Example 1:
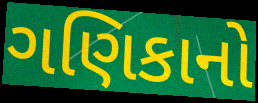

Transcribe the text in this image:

ગણિકાનો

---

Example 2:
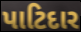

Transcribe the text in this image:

પાટિદાર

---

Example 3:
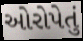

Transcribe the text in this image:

ઓરોપેતું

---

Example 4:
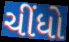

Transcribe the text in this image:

ચીંધો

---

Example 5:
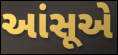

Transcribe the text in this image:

આંસૂએ